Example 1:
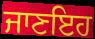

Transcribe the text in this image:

ਜਾਣਇਹ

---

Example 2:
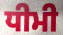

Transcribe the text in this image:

ਧੀਮੀ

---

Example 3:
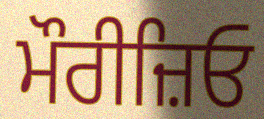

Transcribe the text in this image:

ਮੌਰੀਜ਼ਿਓ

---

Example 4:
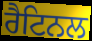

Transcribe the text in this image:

ਰੈਟਿਨਲ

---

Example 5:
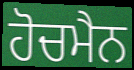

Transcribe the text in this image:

ਹੋਚਮੈਨ